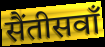
सैंतीसवाँ